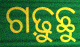
ଗଢ଼ୁଛୁ